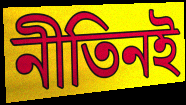
নীতিনই